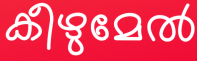
കീഴുമേൽ